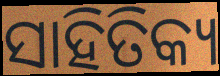
ସାହିତିକ୍ୟ